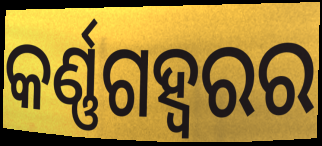
କର୍ଣ୍ଣଗହ୍ୱରର